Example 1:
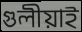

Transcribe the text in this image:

গুলীয়াই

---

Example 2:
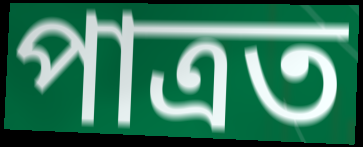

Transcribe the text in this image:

পাত্ৰত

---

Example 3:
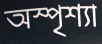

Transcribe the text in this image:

অস্পৃশ্যা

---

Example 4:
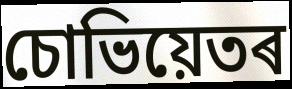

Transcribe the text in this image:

চোভিয়েতৰ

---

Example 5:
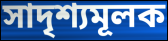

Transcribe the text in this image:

সাদৃশ্যমূলক